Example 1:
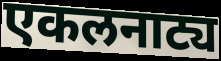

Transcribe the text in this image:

एकलनाट्य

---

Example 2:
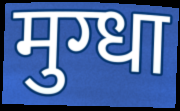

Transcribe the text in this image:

मुग्धा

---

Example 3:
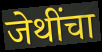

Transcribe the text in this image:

जेथींचा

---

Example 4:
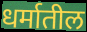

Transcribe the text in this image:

धर्मातील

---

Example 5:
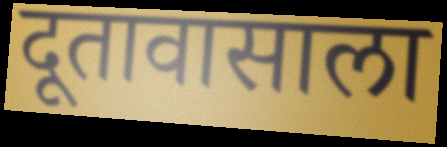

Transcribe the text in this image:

दूतावासाला